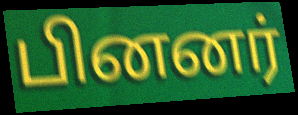
பினனர்